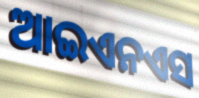
ଆଇଏନଏସ